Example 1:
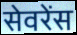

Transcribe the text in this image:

सेवरेंस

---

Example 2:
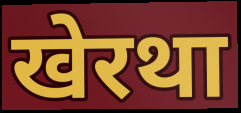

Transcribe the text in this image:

खेरथा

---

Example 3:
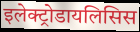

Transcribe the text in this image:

इलेक्ट्रोडायलिसिस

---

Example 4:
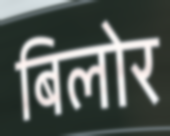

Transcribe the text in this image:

बिलोर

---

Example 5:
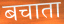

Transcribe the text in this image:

बचाता